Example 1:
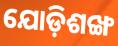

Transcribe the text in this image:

ଯୋଡ଼ିଶଙ୍ଖ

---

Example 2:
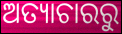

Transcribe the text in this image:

ଅତ୍ୟାଚାରରୁ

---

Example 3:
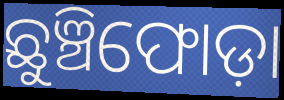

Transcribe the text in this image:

ଛୁଞ୍ଚିଫୋଡ଼ା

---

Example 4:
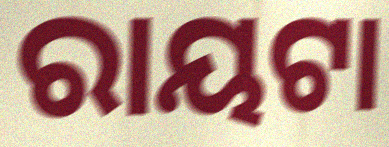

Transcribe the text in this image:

ରାୟଟା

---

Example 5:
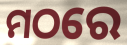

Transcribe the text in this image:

ମଠରେ